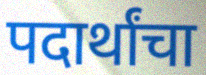
पदार्थांचा